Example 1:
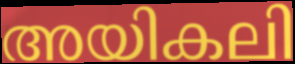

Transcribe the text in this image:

അയികലി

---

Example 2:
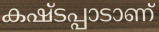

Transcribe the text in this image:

കഷ്ടപ്പാടാണ്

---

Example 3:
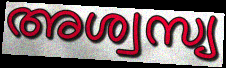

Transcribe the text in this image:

അശ്വസ്യ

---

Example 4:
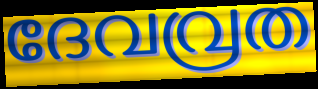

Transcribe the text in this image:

ദേവവ്രത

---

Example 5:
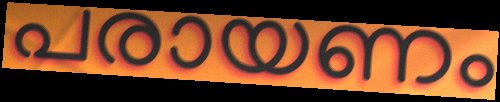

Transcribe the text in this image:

പരായണം